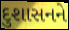
દુશાસનને